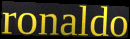
ronaldo